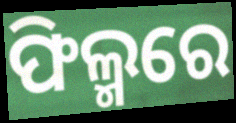
ଫିଲ୍ମରେ